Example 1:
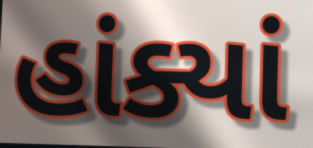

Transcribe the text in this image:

હાંક્યાં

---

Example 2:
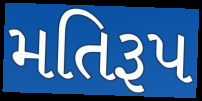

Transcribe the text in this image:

મતિરૂપ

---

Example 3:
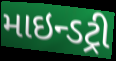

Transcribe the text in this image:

માઇન્ડટ્રી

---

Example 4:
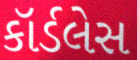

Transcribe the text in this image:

કૉર્ડલેસ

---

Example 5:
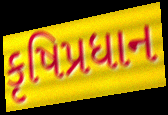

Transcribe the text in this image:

કૃષિપ્રધાન